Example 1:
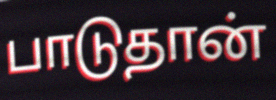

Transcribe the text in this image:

பாடுதான்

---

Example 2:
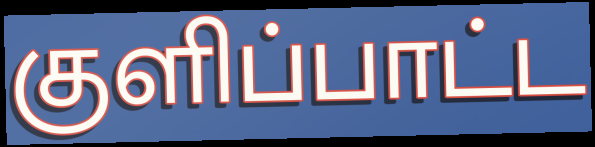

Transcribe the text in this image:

குளிப்பாட்ட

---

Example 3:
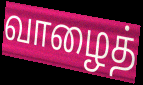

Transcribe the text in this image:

வாழைத்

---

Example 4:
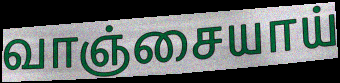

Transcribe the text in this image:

வாஞ்சையாய்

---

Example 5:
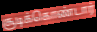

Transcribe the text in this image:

சூடிக்கொண்டார்